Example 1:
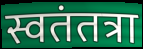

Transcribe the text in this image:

स्वतंतत्रा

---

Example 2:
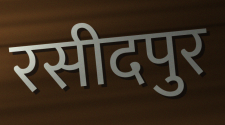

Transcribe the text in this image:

रसीदपुर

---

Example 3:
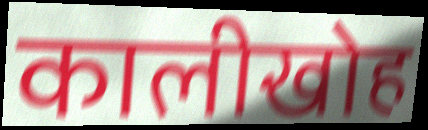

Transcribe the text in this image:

कालीखोह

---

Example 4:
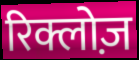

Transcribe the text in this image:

रिक्लोज़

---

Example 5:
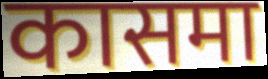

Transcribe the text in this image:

कासमा